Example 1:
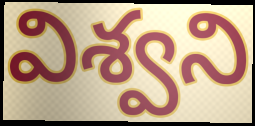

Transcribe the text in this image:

విశ్వని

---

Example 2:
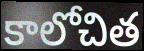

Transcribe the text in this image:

కాలోచిత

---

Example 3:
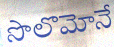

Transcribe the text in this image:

సొలొమోనే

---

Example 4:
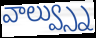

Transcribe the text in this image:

వాల్వ్స్ను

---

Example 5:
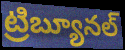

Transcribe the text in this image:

ట్రిబ్యూనల్